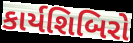
કાર્યશિબિરો